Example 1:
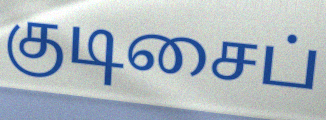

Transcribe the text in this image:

குடிசைப்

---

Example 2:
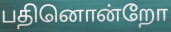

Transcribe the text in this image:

பதினொன்றோ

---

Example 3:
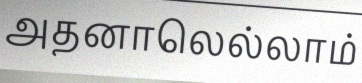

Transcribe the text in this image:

அதனாலெல்லாம்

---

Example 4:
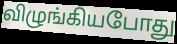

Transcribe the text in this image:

விழுங்கியபோது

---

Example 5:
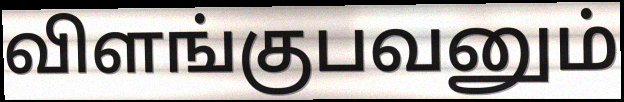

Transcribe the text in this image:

விளங்குபவனும்